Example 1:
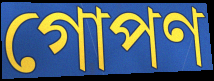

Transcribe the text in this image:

গোপণ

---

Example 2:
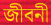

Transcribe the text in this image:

জীবনী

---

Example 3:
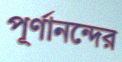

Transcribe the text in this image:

পূর্ণানন্দের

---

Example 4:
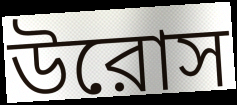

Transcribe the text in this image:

উরোস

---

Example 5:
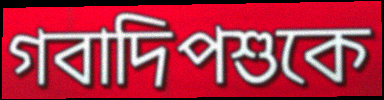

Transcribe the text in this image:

গবাদিপশুকে